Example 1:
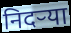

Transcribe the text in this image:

निदऱ्या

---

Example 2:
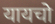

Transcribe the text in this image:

यायचो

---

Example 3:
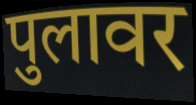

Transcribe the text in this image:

पुलावर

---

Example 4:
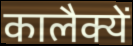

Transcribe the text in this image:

कालैक्यें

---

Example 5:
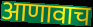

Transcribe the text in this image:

आणावाच